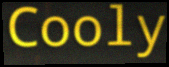
Cooly